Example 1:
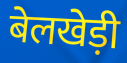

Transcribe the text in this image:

बेलखेड़ी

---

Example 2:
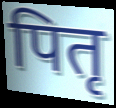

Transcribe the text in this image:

पितृ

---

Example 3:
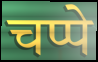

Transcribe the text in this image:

चप्पे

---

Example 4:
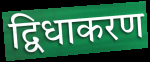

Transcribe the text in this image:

द्विधाकरण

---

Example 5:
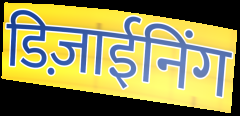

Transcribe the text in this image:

डिज़ाईनिंग